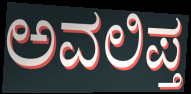
ಅವಲಿಪ್ತ